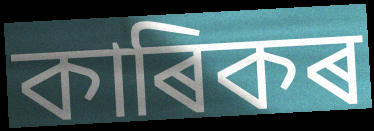
কাৰিকৰ